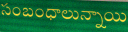
సంబంధాలున్నాయి